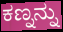
ಕಣ್ನನ್ನು